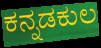
ಕನ್ನಡಕುಲ